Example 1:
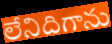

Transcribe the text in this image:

లేనిదిగాను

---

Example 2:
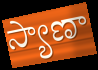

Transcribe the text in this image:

స్యాణా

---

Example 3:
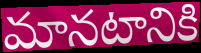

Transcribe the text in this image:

మానటానికి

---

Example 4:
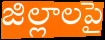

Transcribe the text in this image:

జిల్లాలపై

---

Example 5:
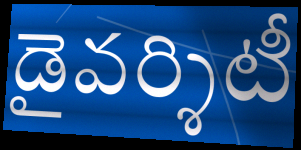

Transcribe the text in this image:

డైవర్శిటీ